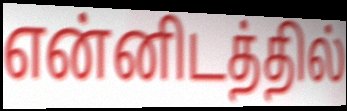
என்னிடத்தில்